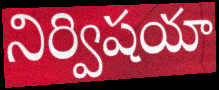
నిర్విషయా